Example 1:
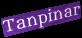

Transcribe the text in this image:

Tanpinar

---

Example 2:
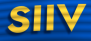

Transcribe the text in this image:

SIIV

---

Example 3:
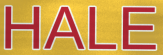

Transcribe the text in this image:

HALE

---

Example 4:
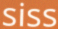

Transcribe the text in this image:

siss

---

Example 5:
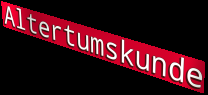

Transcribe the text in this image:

Altertumskunde